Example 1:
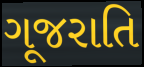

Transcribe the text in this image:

ગૂજરાતિ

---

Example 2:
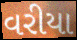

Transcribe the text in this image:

વરીયા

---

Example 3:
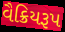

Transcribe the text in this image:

વૈક્રિયરૂપ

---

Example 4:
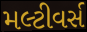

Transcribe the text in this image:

મલ્ટીવર્સ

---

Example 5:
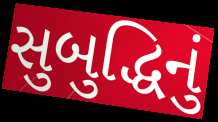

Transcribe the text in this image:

સુબુદ્ધિનું